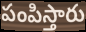
పంపిస్తారు